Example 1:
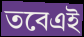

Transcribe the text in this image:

তবেএই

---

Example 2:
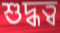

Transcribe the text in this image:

শুদ্ধত্ব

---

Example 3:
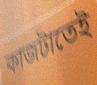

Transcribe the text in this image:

কাজটাতেই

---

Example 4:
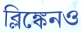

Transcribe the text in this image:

ব্লিঙ্কেনও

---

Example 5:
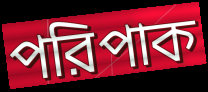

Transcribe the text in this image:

পরিপাক